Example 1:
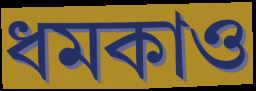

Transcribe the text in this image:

ধমকাও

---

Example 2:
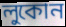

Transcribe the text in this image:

লুকোন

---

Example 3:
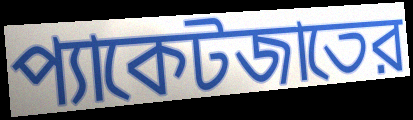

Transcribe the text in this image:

প্যাকেটজাতের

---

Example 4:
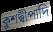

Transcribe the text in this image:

কুশদ্বীপাদি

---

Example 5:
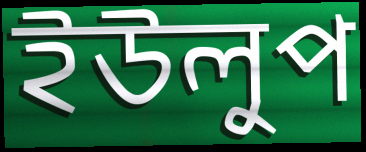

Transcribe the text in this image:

ইউলুপ